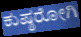
ಕುಷ್ಠರೋಗಿ